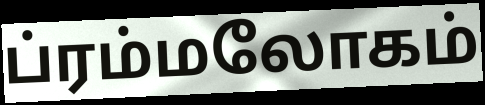
ப்ரம்மலோகம்